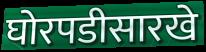
घोरपडीसारखे